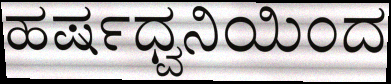
ಹರ್ಷಧ್ವನಿಯಿಂದ